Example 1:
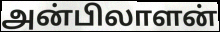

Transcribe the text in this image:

அன்பிலாளன்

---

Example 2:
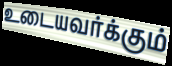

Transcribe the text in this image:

உடையவர்க்கும்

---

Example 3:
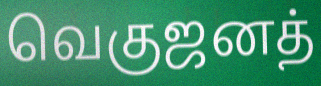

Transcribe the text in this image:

வெகுஜனத்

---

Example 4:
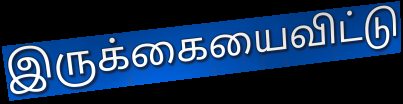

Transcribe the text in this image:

இருக்கையைவிட்டு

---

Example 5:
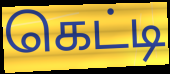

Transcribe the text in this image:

கெட்டி